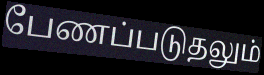
பேணப்படுதலும்